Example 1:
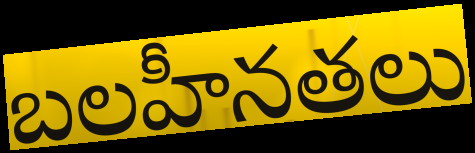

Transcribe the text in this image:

బలహీనతలు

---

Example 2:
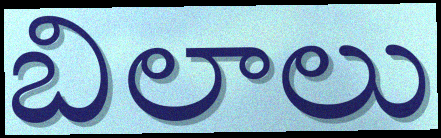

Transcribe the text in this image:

బిలాలు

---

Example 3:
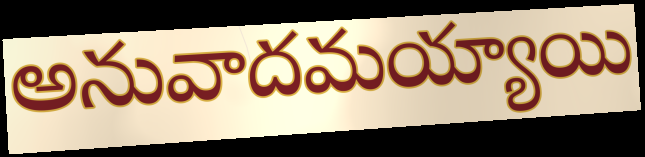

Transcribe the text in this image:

అనువాదమయ్యాయి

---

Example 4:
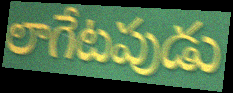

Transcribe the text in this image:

లాగేటపుడు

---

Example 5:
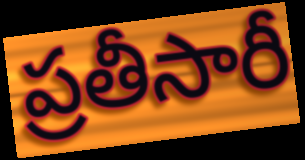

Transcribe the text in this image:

ప్రతీసారీ